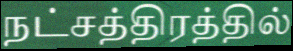
நட்சத்திரத்தில்